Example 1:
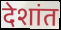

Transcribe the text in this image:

देशांत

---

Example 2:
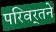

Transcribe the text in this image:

परिवर्तने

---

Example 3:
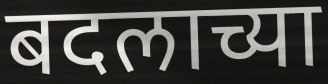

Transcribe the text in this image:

बदलाच्या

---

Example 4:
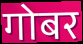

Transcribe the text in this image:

गोबर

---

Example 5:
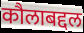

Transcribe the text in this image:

कौलाबद्दल